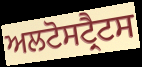
ਅਲਟੋਸਟ੍ਰੈਟਸ